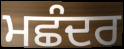
ਮਛੰਦਰ